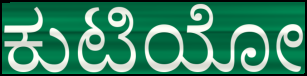
ಕುಟಿಯೋ